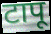
टापू